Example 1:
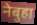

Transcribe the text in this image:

नेबुहा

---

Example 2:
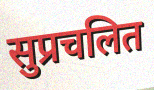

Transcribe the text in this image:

सुप्रचलित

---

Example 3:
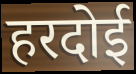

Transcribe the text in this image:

हरदोई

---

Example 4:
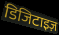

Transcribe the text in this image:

डिजिटाइज़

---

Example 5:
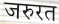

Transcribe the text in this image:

जरुरत